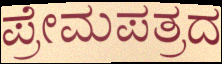
ಪ್ರೇಮಪತ್ರದ